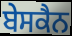
ਬੇਸਕੈਨ